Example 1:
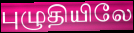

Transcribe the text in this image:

புழுதியிலே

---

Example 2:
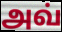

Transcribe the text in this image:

அவ்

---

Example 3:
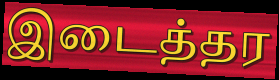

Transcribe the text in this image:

இடைத்தர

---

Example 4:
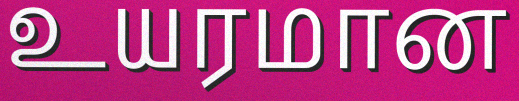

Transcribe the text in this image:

உயரமான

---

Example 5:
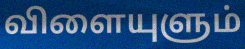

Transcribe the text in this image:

விளையுளும்